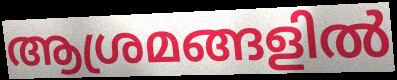
ആശ്രമങ്ങളിൽ